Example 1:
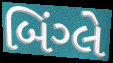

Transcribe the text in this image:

બિંગ્લે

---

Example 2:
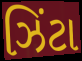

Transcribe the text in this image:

ઝિંટા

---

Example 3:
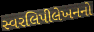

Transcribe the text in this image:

સ્વરલિપીલેખનનો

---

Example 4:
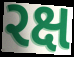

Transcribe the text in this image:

રક્ષ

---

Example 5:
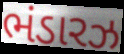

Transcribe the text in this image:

ભંડારઝ